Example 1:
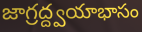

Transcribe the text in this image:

జాగ్రద్ద్వయాభాసం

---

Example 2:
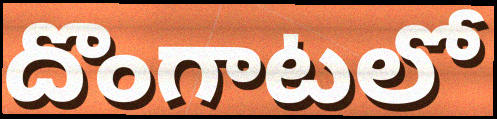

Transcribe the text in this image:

దొంగాటలో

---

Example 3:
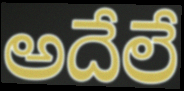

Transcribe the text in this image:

అదేలే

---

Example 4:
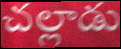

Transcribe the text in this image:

చల్లాడు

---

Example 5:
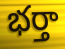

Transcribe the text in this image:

భర్తా